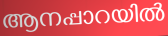
ആനപ്പാറയിൽ